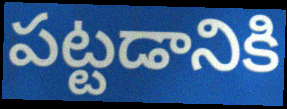
పట్టడానికి